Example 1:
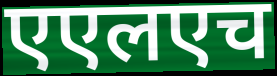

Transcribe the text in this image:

एएलएच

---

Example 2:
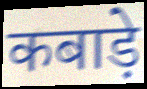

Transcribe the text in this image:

कबाड़े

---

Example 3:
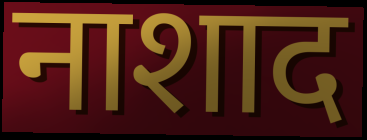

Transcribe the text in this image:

नाशाद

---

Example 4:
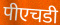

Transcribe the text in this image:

पीएचडी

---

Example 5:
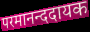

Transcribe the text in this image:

परमानन्ददायक